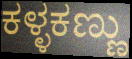
ಕಳ್ಳಕಣ್ಣು